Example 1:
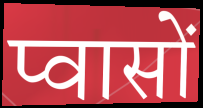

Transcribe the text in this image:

प्वासों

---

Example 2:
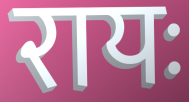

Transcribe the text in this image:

रायः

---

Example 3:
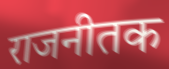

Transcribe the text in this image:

राजनीतक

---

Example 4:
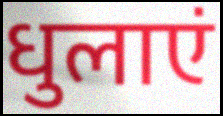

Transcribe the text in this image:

धुलाएं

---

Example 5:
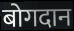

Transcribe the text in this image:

बोगदान